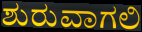
ಶುರುವಾಗಲಿ